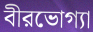
বীরভোগ্যা